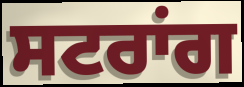
ਸਟਰਾਂਗ